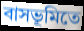
বাসভূমিতে